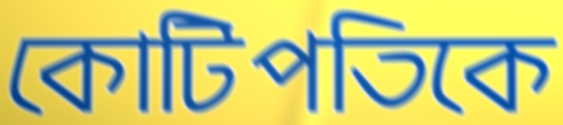
কোটিপতিকে